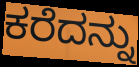
ಕರೆದನ್ನು